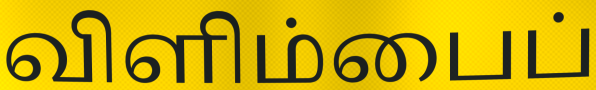
விளிம்பைப்